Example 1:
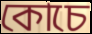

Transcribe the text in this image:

কোচে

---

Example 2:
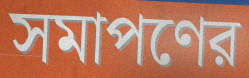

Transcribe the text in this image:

সমাপণের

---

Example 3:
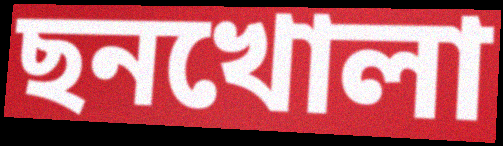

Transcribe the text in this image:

ছনখোলা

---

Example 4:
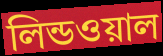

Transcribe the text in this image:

লিন্ডওয়াল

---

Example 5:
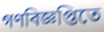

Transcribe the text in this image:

গণবিজ্ঞপ্তিতে